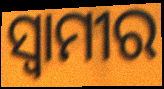
ସ୍ଵାମୀର